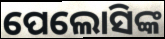
ପେଲୋସିଙ୍କ